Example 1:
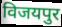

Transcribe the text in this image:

विजयपुर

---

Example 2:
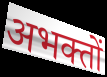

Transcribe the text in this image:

अभक्तों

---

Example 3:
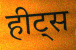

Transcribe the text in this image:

हीट्स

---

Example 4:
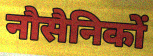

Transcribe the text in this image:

नौसैनिकों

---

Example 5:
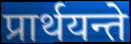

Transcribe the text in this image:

प्रार्थयन्ते